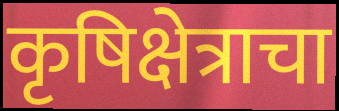
कृषिक्षेत्राचा